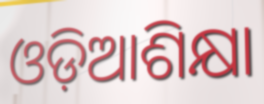
ଓଡ଼ିଆଶିକ୍ଷା